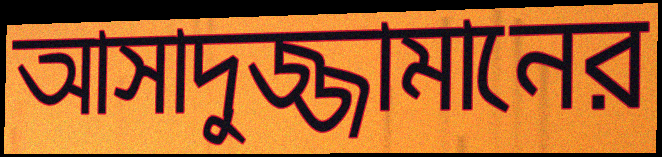
আসাদুজ্জামানের